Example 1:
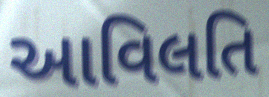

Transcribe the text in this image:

આવિલતિ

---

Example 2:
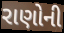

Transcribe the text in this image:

રાણોની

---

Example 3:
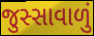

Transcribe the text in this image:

જુસ્સાવાળું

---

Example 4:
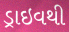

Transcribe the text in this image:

ડ્રાઇવથી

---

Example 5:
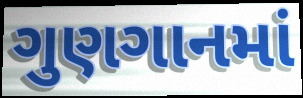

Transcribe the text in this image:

ગુણગાનમાં